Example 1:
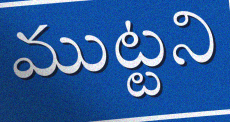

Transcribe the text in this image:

ముట్టని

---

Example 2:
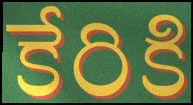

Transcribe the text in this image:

కేరికి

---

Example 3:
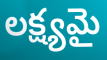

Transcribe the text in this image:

లక్ష్యమై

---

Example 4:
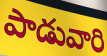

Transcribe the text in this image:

పాడువారి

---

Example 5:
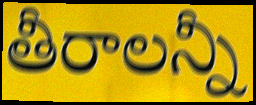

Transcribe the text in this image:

తీరాలన్నీ